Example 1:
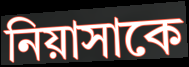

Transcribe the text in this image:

নিয়াসাকে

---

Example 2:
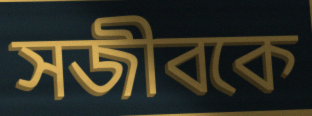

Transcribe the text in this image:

সজীবকে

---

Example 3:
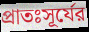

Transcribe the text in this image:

প্রাতঃসূর্যের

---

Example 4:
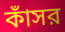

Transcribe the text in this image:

কাঁসর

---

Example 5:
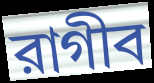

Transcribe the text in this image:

রাগীব